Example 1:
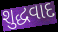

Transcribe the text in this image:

શુદ્ધવાદ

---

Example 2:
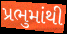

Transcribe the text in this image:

પ્રભુમાંથી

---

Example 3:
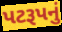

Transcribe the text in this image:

પટરૂપનું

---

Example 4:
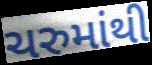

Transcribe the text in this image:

ચરુમાંથી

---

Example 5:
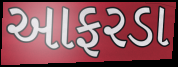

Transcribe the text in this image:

આફરડા